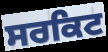
ਸਰਕਿਟ